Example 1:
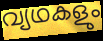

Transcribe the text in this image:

വ്യഥകളും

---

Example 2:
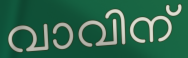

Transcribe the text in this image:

വാവിന്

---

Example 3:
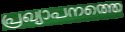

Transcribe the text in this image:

പ്രഖ്യാപനത്തെ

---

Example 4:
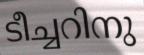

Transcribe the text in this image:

ടീച്ചറിനു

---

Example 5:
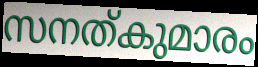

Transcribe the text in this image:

സനത്കുമാരം